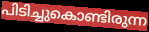
പിടിച്ചുകൊണ്ടിരുന്ന